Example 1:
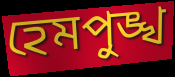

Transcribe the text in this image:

হেমপুঙ্খ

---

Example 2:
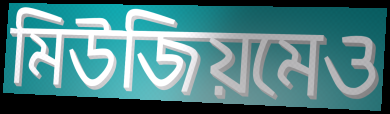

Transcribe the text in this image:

মিউজিয়মেও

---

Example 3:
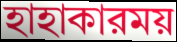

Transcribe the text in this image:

হাহাকারময়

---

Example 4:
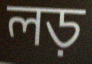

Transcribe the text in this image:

লড়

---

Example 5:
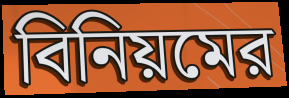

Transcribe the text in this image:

বিনিয়মের